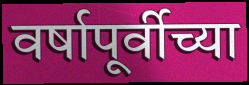
वर्षापूर्वीच्या